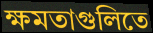
ক্ষমতাগুলিতে